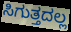
ಸಿಗುತ್ತದಲ್ಲ